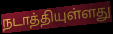
நடாத்தியுள்ளது